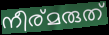
നീര്മരുത്